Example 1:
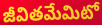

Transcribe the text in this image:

జీవితమేమిటో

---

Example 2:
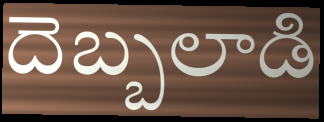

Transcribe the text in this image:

దెబ్బలాడి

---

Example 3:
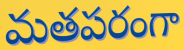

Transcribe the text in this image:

మతపరంగా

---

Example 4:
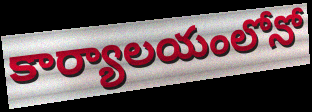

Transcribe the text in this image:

కార్యాలయంలోనో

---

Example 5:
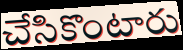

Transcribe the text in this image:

చేసికొంటారు